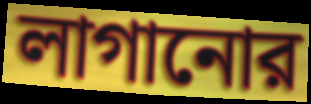
লাগানোর